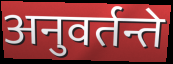
अनुवर्तन्ते